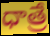
ధాత్రే